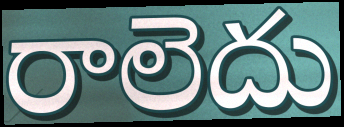
రాలెదు